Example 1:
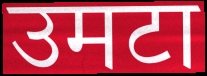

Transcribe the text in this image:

उमटा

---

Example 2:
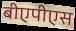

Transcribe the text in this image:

बीएपीएस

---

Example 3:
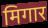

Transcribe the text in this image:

मिगार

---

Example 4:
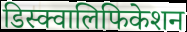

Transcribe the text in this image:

डिस्क्वालिफिकेशन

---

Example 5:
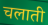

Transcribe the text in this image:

चलाती